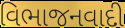
વિભાજનવાદી